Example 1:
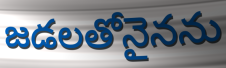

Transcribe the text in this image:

జడలతోనైనను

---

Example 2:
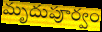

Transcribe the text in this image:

మృదుపూర్వం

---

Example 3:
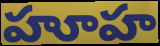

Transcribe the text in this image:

హూహ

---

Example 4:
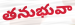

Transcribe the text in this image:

తనుభువా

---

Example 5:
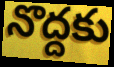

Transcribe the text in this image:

నొద్దకు